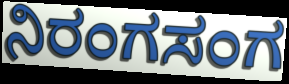
ನಿರಂಗಸಂಗ